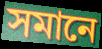
সমানে